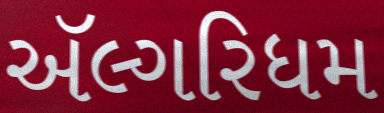
ઍલ્ગરિધમ